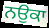
ਨਉਕਾ